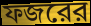
ফজরের